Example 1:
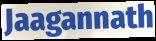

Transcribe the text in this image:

Jaagannath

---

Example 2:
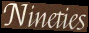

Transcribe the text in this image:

Nineties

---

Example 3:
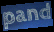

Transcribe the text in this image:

pand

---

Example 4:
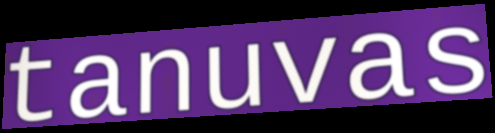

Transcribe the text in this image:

tanuvas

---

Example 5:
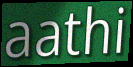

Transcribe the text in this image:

aathi